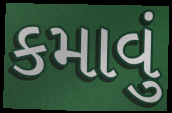
કમાવું